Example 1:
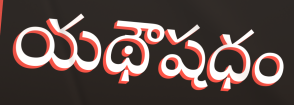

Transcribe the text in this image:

యథౌషధం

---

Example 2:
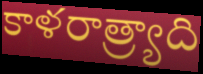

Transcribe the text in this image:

కాళరాత్ర్యాది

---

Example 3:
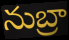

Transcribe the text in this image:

నుబ్రా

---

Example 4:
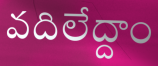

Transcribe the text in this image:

వదిలేద్దాం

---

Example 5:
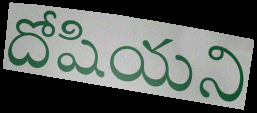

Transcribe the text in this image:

దోషియని